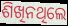
ଶିଖିନଥିଲେ